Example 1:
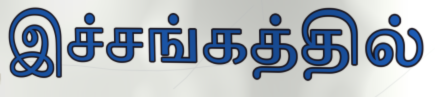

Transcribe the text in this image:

இச்சங்கத்தில்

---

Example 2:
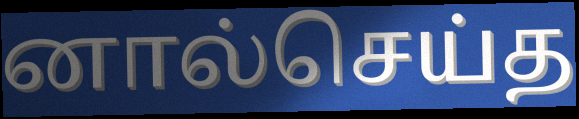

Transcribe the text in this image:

னால்செய்த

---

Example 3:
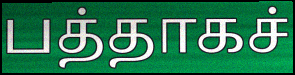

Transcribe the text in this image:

பத்தாகச்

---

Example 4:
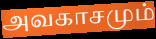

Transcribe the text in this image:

அவகாசமும்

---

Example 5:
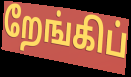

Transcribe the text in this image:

றேங்கிப்